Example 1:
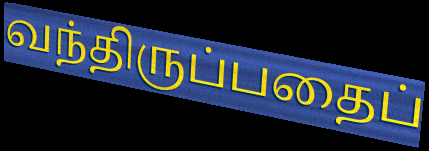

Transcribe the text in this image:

வந்திருப்பதைப்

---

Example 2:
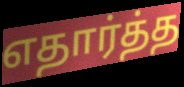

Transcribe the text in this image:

எதார்த்த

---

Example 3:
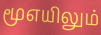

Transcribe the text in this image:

மூஎயிலும்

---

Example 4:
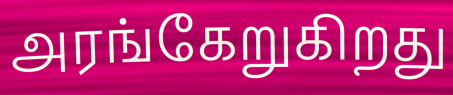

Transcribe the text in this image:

அரங்கேறுகிறது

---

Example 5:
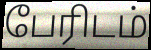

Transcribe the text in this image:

பேரிடம்